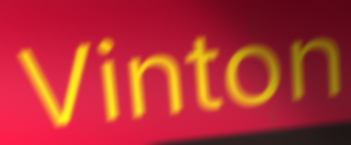
Vinton